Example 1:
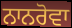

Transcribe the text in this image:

ਨਾਨਰੋਵਾ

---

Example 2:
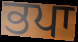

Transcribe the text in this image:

ਭਪਾ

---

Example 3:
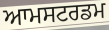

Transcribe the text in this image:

ਆਮਸਟਰਡਮ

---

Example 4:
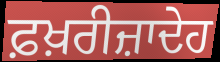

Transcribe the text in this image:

ਫ਼ਖ਼ਰੀਜ਼ਾਦੇਹ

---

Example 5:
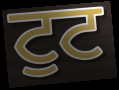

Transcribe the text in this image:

ਟੁਟ